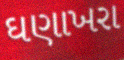
ઘણાખરા